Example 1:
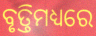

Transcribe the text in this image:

ବୃତ୍ତିମଧ୍ୟରେ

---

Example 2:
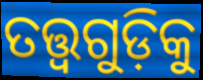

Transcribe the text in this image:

ତତ୍ତ୍ୱଗୁଡ଼ିକୁ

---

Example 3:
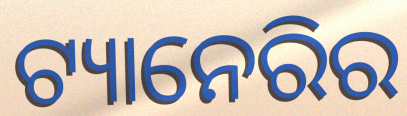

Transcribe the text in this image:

ଟ୍ୟାନେରିର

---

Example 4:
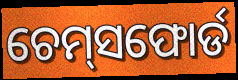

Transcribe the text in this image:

ଚେମ୍‌ସଫୋର୍ଡ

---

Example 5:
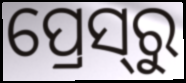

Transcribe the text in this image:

ପ୍ରେସ୍‌ରୁ